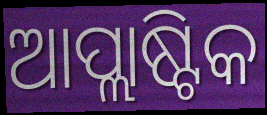
ଆପ୍ଲାଷ୍ଟିକ